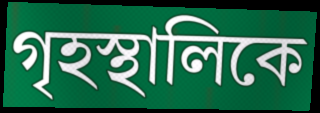
গৃহস্থালিকে